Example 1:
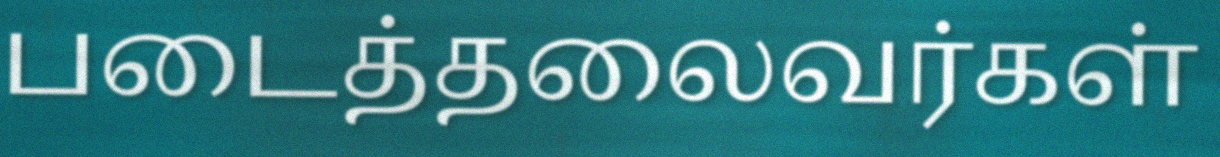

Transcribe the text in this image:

படைத்தலைவர்கள்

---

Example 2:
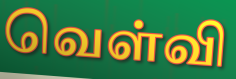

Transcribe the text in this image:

வெள்வி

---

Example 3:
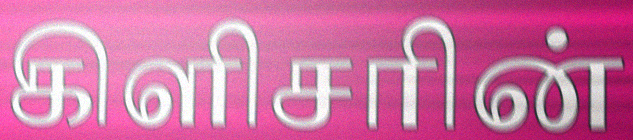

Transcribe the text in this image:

கிளிசரின்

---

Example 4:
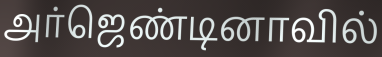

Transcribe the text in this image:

அர்ஜெண்டினாவில்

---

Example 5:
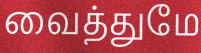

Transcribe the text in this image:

வைத்துமே